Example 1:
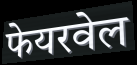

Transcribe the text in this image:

फेयरवेल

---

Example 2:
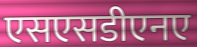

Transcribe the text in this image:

एसएसडीएनए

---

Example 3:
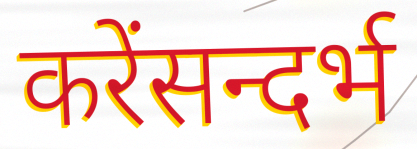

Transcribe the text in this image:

करेंसन्दर्भ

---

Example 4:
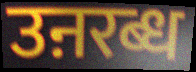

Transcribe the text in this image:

उऩरब्ध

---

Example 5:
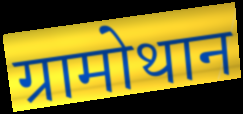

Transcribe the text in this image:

ग्रामोथान